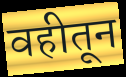
वहीतून